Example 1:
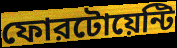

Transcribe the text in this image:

ফোরটোয়েন্টি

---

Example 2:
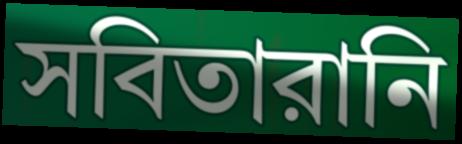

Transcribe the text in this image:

সবিতারানি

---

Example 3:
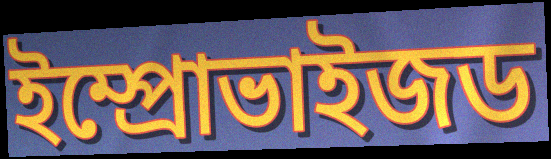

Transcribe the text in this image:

ইম্প্রোভাইজড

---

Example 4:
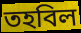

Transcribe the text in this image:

তহবিল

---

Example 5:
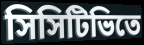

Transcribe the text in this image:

সিসিটিভিতে